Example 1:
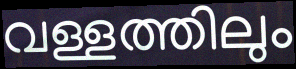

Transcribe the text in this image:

വള്ളത്തിലും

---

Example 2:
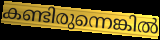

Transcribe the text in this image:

കണ്ടിരുന്നെങ്കിൽ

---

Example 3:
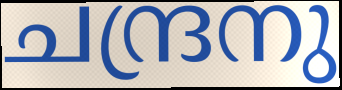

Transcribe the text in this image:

ചന്ദ്രനു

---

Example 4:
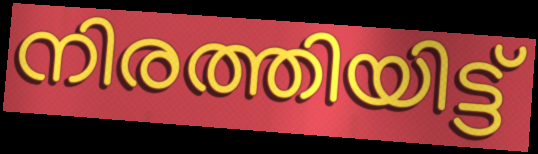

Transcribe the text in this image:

നിരത്തിയിട്ട്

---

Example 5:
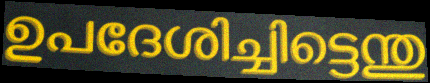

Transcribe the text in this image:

ഉപദേശിച്ചിട്ടെന്തു